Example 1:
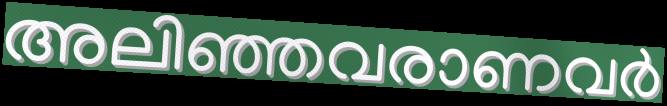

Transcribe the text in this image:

അലിഞ്ഞവരാണവർ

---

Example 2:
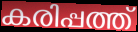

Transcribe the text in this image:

കരിപ്പത്ത്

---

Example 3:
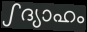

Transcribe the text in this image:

ഽദ്യാഹം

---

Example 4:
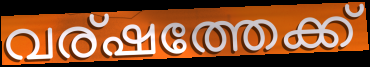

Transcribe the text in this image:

വര്ഷത്തേക്ക്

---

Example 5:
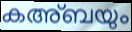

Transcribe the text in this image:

കഅ്ബയും